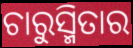
ଚାରୁସ୍ମିତାର